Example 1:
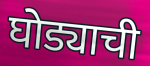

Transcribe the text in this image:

घोड्याची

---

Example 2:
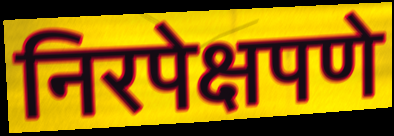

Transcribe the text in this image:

निरपेक्षपणे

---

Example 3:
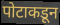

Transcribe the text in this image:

पोटाकडून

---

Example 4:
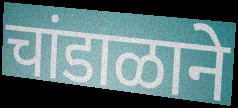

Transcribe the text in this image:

चांडाळाने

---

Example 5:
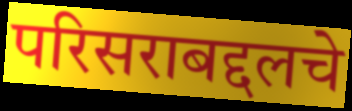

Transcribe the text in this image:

परिसराबद्दलचे